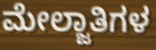
ಮೇಲ್ಜಾತಿಗಳ